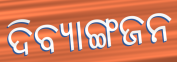
ଦିବ୍ୟାଙ୍ଗଜନ